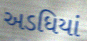
અડધિયાં